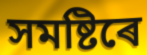
সমষ্টিৰে